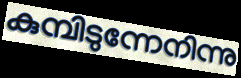
കുമ്പിടുന്നേനിന്നു